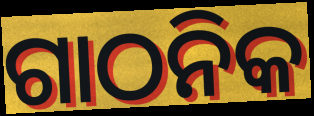
ଗାଠନିକ